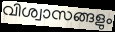
വിശ്വാസങ്ങളും